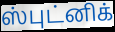
ஸ்புட்னிக்